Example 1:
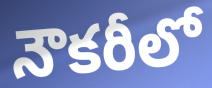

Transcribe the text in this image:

నౌకరీలో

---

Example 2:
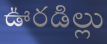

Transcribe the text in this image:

ఊరడిల్లు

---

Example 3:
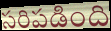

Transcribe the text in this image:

సరిపడింది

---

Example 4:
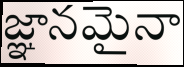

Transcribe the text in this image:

జ్ఞానమైనా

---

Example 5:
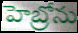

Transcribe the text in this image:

హెబ్రోను